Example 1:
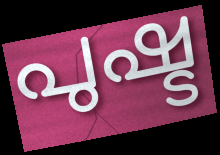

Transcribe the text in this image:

പുഷ്ട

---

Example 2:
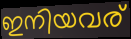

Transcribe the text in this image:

ഇനിയവര്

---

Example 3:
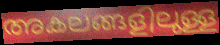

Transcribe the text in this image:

അകലങ്ങളിലുള്ള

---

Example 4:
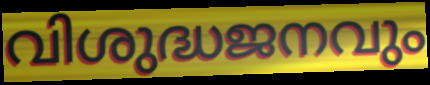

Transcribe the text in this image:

വിശുദ്ധജനവും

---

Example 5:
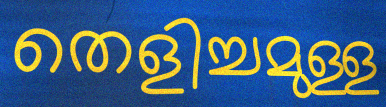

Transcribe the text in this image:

തെളിച്ചമുള്ള